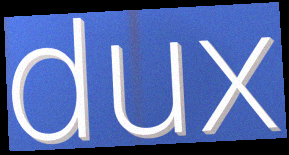
dux